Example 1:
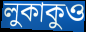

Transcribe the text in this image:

লুকাকুও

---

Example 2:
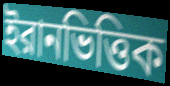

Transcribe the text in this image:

ইরানভিত্তিক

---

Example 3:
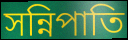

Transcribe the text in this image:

সন্নিপাতি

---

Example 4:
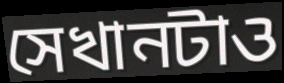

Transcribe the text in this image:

সেখানটাও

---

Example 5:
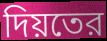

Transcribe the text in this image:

দিয়তের